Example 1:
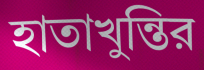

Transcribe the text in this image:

হাতাখুন্তির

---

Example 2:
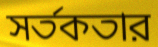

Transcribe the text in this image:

সর্তকতার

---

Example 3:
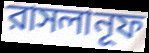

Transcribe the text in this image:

রাসলানূফ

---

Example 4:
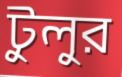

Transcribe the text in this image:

টুলুর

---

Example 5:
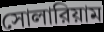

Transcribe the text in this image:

সোলারিয়াম